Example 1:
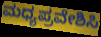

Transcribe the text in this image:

ಮಧ್ಯಪ್ರವೇಶಿಸಿ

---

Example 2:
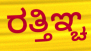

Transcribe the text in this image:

ರತ್ತಿಞ್ಚ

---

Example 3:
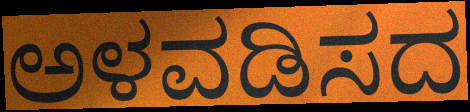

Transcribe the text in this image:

ಅಳವಡಿಸದ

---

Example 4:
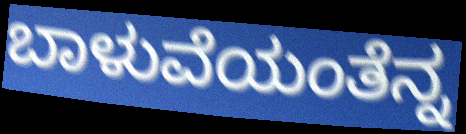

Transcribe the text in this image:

ಬಾಳುವೆಯಂತೆನ್ನ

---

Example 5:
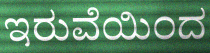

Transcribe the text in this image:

ಇರುವೆಯಿಂದ